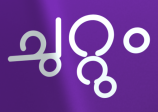
ചുറ്റും